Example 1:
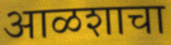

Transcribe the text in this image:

आळशाचा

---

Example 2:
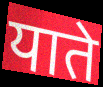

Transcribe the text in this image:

याते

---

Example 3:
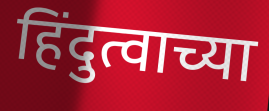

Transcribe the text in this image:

हिंदुत्वाच्या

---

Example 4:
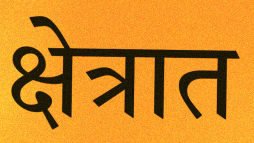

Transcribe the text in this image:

क्षेत्रात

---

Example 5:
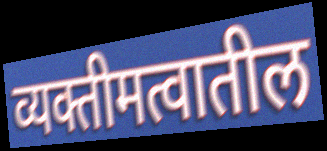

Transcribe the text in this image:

व्यक्तीमत्वातील